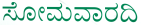
ಸೋಮವಾರದಿ